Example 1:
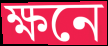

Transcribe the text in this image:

ক্ষনে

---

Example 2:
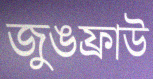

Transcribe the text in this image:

জুঙফ্রাউ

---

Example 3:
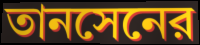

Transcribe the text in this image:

তানসেনের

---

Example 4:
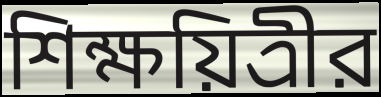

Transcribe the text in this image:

শিক্ষয়িত্রীর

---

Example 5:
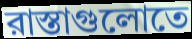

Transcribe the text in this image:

রাস্তাগুলোতে